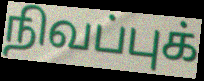
நிவப்புக்